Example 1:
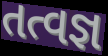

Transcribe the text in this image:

તત્વજ્ઞ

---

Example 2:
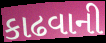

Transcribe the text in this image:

કાઢવાની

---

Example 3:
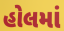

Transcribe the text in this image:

હોલમાં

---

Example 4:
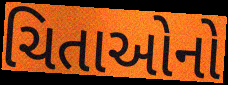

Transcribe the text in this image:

ચિતાઓનો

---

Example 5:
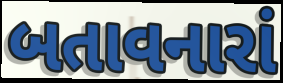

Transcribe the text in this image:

બતાવનારાં